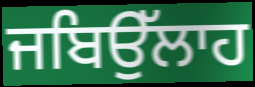
ਜਬਿਉੱਲਾਹ